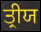
ਤ੍ਰੀਯ